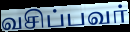
வசிப்பவர்